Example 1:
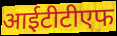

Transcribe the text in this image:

आईटीटीएफ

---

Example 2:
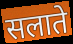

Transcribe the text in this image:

सलाते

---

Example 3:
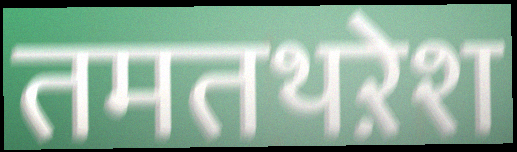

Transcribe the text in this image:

तमतथऱेश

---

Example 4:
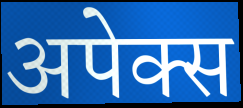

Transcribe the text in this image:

अपेक्स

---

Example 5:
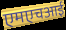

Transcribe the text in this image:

एमएचआई